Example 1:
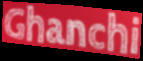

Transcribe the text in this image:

Ghanchi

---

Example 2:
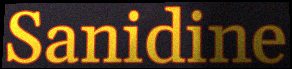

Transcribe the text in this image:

Sanidine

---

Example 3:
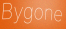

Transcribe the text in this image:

Bygone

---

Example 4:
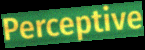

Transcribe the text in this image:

Perceptive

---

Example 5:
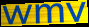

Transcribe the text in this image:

wmv